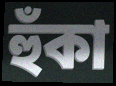
হুঁকা